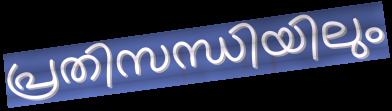
പ്രതിസന്ധിയിലും